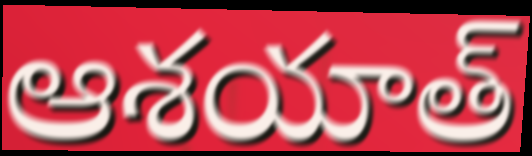
ఆశయాత్